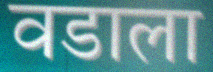
वडाला